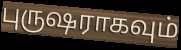
புருஷராகவும்